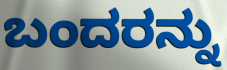
ಬಂದರನ್ನು